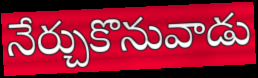
నేర్చుకొనువాడు